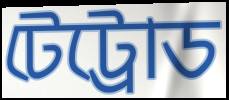
টেট্রোড